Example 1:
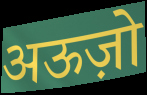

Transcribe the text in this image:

अऊज़ो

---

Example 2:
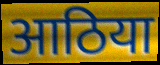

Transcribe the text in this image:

आठिया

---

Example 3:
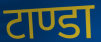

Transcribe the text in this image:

टाण्डा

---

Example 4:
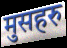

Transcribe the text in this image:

मुसहरु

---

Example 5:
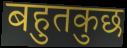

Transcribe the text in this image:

बहुतकुछ